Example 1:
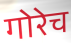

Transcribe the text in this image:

गोरेच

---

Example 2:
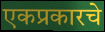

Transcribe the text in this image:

एकप्रकारचे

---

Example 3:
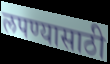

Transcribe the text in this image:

लपण्यासाठी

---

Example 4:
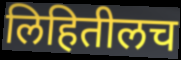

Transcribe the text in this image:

लिहितीलच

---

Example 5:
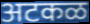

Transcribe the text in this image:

अटकळ